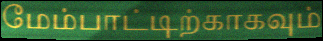
மேம்பாட்டிற்காகவும்